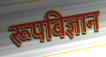
रूपविज्ञान